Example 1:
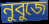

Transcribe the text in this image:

নুবুজে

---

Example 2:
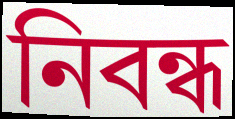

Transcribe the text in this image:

নিবন্ধ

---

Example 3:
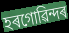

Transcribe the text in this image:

হৰগোৱিন্দৰ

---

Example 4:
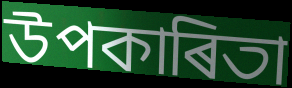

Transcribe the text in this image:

উপকাৰিতা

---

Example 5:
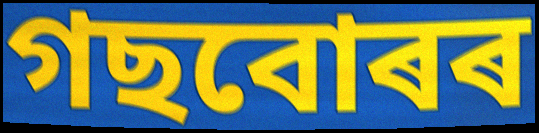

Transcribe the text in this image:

গছবোৰৰ